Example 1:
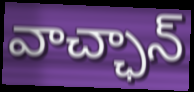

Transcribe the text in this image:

వాచ్ఛాన్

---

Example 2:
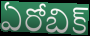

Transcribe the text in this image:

ఏరోబిక్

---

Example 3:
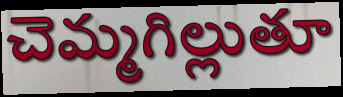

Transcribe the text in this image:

చెమ్మగిల్లుతూ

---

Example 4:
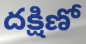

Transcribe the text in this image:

దక్షిణో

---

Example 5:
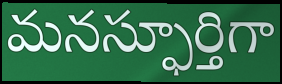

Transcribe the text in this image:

మనస్ఫూర్తిగా